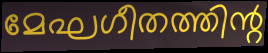
മേഘഗീതത്തിന്റ